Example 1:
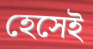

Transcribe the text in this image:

হেসেই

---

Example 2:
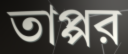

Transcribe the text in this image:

তাপ্পর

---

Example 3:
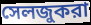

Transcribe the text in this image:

সেলজুকরা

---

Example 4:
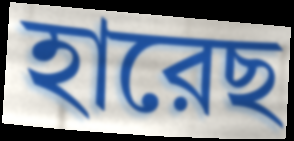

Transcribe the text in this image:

হারেছ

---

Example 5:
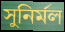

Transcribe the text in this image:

সুনির্মল